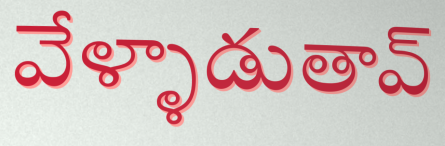
వేళ్ళాడుతావ్